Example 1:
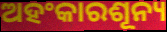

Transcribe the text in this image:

ଅହଂକାରଶୂନ୍ୟ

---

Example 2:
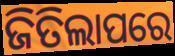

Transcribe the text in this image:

ଜିତିଲାପରେ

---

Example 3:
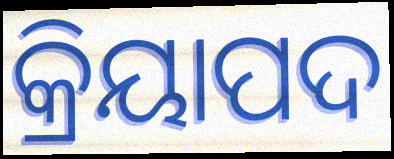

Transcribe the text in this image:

କ୍ରିୟାପଦ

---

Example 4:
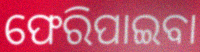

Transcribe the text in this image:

ଫେରିପାଇବା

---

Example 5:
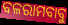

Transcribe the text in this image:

ବଳରାମବାବୁ